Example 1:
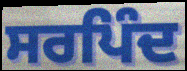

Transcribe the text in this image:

ਸਰਪਿੰਦ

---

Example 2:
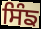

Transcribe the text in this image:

ਸਿੰਙ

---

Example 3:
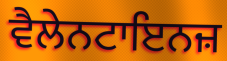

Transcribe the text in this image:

ਵੈਲੇਨਟਾਇਨਜ਼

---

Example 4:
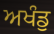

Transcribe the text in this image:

ਅਖੰਡੁ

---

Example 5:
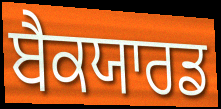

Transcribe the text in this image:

ਬੈਕਯਾਰਡ